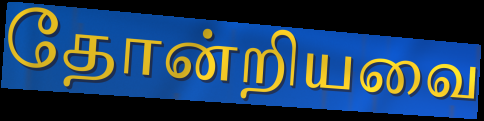
தோன்றியவை